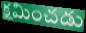
క్షమించడు